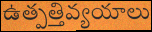
ఉత్పత్తివ్యయాలు